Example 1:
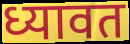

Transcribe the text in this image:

ध्यावत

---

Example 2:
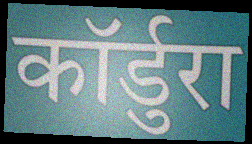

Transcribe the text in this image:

कॉर्डुरा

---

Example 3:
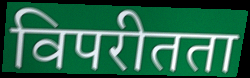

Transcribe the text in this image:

विपरीतता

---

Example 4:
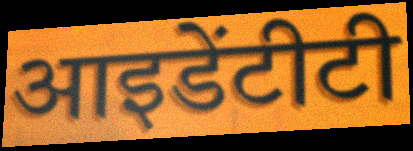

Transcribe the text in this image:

आइडेंटीटी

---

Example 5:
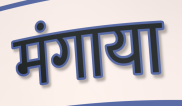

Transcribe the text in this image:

मंगाया